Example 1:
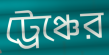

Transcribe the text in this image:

ট্রেঞ্চের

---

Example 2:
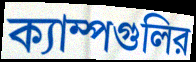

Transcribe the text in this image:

ক্যাম্পগুলির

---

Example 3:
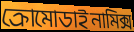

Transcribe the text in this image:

ক্রোমোডাইনামিক্স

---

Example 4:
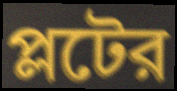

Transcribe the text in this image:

প্লটের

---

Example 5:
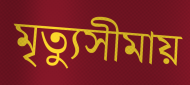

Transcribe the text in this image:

মৃত্যুসীমায়